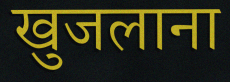
खुजलाना